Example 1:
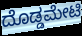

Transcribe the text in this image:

ದೊಡ್ಡಮೇಟಿ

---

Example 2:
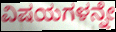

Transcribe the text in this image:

ವಿಷಯಗಳನ್ನೇ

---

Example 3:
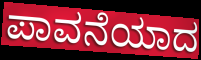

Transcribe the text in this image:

ಪಾವನೆಯಾದ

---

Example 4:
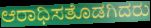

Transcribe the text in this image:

ಆರಾಧಿಸತೊಡಗಿದರು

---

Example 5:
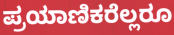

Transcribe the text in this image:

ಪ್ರಯಾಣಿಕರೆಲ್ಲರೂ